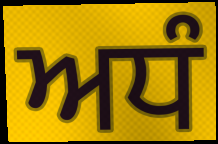
ਅਧੰ